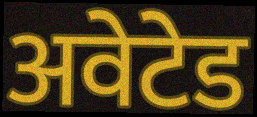
अवेटेड